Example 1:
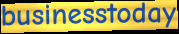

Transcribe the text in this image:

businesstoday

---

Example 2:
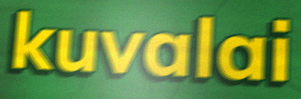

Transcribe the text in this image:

kuvalai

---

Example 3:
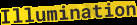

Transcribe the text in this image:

Illumination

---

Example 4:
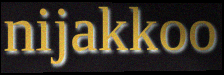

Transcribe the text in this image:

nijakkoo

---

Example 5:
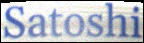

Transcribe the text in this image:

Satoshi